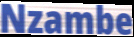
Nzambe